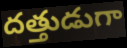
దత్తుడుగా